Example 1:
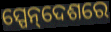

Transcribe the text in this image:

ସ୍ପେନ୍‌ଦେଶରେ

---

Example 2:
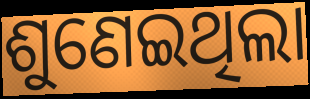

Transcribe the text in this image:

ଶୁଣେଇଥିଲା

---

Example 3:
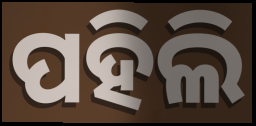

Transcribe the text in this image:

ପହିଲି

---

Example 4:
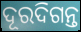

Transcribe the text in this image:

ଦୂରଦିଗନ୍ତ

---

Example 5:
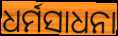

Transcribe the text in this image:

ଧର୍ମସାଧନା